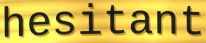
hesitant